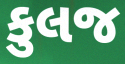
કુલજ